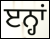
ੲਨ੍ਹਾਂ